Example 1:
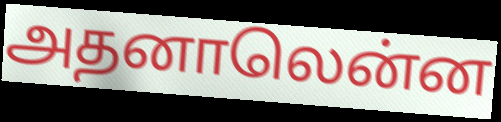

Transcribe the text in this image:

அதனாலென்ன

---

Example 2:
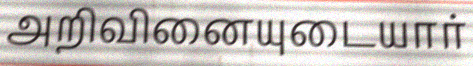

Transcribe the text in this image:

அறிவினையுடையார்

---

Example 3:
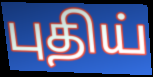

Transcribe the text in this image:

புதிய்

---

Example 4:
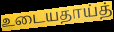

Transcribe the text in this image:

உடையதாய்த்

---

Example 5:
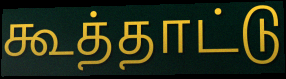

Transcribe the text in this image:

கூத்தாட்டு